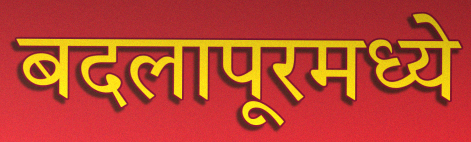
बदलापूरमध्ये